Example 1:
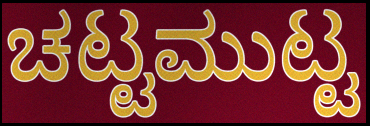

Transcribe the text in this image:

ಚಟ್ಟಮುಟ್ಟ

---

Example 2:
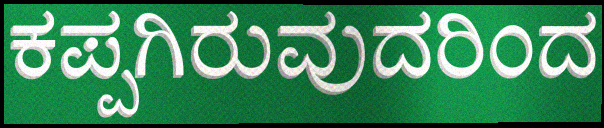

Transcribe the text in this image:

ಕಪ್ಪಗಿರುವುದರಿಂದ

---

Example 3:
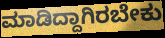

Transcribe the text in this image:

ಮಾಡಿದ್ದಾಗಿರಬೇಕು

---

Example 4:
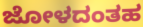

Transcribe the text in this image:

ಜೋಳದಂತಹ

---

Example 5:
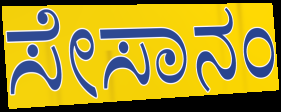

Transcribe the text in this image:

ಸೇಸಾನಂ